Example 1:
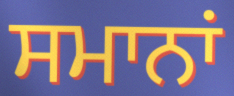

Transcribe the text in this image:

ਸਮਾਨਾਂ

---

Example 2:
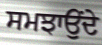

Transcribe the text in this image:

ਸਮਝਾਉਂਦੇ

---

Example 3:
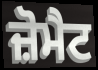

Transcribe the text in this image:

ਜ਼ੋਮੈਟ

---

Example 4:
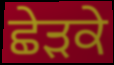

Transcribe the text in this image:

ਛੇੜਕੇ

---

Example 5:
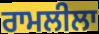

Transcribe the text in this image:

ਰਾਮਲੀਲਾ